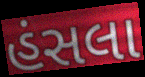
હંસલા